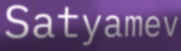
Satyamev